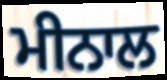
ਮੀਨਾਲ